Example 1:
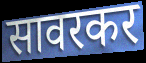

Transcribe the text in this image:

सावरकर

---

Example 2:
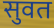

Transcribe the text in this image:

सुवत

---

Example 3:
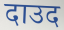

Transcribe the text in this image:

दाउद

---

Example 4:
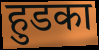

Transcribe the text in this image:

हुडका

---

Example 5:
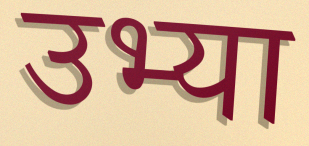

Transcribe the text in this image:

उभ्या